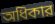
অধিকার